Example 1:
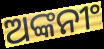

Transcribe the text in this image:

ଅଙ୍କନୀଂ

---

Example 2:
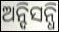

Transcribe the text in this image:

ଅନ୍ଦିସନ୍ଧି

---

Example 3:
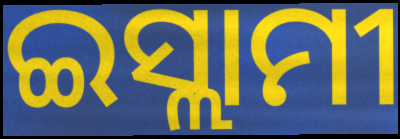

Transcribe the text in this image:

ଇସ୍ଲାମୀ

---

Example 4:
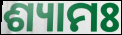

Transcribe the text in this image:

ଶ୍ୟାମଃ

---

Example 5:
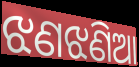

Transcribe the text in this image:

ଝଣଝଣିଆ